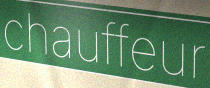
chauffeur